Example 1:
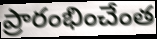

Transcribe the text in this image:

ప్రారంభించేంత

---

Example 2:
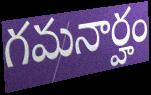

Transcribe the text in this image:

గమనార్హం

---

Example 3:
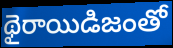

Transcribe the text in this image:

థైరాయిడిజంతో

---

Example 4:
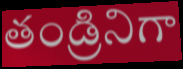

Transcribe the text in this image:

తండ్రినిగా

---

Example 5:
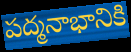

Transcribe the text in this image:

పద్మనాభానికి